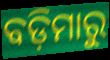
ବଡ଼ିମାରୁ